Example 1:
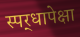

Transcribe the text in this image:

स्पर्धापेक्षा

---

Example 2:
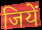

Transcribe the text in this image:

जियें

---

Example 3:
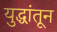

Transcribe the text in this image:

युद्धांतून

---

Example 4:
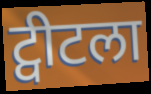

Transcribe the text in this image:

ट्वीटला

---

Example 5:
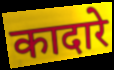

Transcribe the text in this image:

कादारे